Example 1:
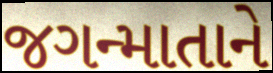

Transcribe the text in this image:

જગન્માતાને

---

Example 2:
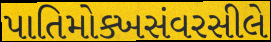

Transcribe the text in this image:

પાતિમોક્ખસંવરસીલે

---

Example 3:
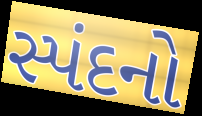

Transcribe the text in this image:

સ્પંદનો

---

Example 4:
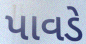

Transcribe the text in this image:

પાવડે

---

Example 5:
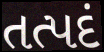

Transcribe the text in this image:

તત્પદં